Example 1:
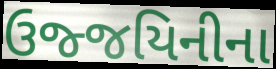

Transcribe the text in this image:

ઉજ્જયિનીના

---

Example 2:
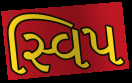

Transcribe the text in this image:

સ્વિપ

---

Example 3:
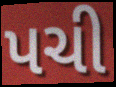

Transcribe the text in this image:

પચી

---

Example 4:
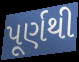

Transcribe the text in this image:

પૂર્ણથી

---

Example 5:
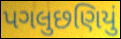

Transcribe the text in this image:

પગલુછણિયું